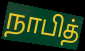
நாபித்